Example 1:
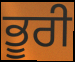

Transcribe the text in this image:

ਭੂਰੀ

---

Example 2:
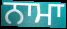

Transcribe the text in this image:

ਨਾਮਾ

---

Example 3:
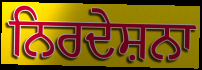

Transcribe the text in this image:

ਨਿਰਦੇਸ਼ਨਾ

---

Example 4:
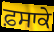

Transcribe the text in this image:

ਫ਼ਸਾਕੇ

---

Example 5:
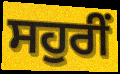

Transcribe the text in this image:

ਸਹੁਰੀਂ